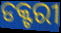
ଡକ୍ଟରୀ